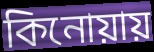
কিনোয়ায়